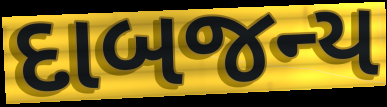
દાબજન્ય